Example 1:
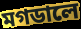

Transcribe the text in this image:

মগডালে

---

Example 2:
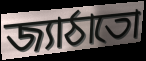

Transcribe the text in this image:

জ্যাঠাতো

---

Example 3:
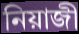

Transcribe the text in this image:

নিয়াজী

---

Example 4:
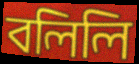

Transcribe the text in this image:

বলিলি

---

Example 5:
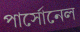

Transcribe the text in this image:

পার্সোনেল